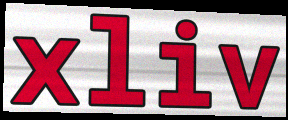
xliv